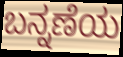
ಬನ್ನಣೆಯ